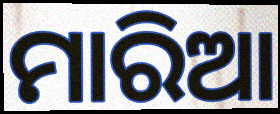
ମାରିଆ